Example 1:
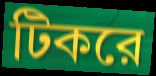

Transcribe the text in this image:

টিকরে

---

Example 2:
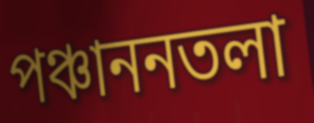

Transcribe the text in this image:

পঞ্চাননতলা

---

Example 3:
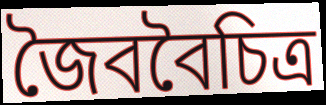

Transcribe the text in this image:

জৈববৈচিত্র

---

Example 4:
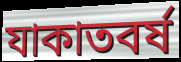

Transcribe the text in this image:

যাকাতবর্ষ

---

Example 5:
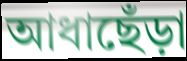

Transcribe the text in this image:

আধাছেঁড়া